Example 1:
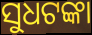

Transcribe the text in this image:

ସୁଧଟଙ୍କା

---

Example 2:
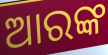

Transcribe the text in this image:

ଆରଙ୍କ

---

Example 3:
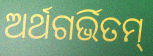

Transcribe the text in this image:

ଅର୍ଥଗର୍ଭିତମ୍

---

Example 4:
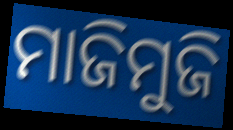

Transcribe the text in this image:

ମାଜିମୁଜି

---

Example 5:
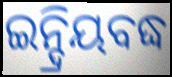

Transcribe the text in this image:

ଇନ୍ଦ୍ରିୟବଦ୍ଧ